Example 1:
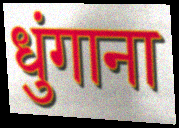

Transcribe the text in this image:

धुंगाना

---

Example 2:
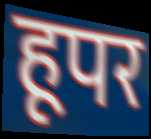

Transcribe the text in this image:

हूपर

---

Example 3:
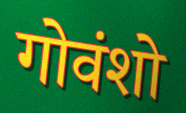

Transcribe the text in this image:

गोवंशो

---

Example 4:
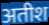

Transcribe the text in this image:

अतीश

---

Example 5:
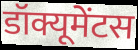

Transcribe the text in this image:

डॉक्यूमेंटस